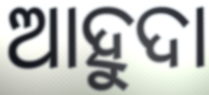
ଆହୁଦା